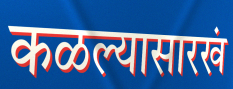
कळल्यासारखं